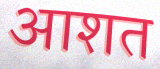
आशत